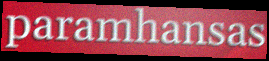
paramhansas